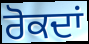
ਰੋਕਦਾਂ